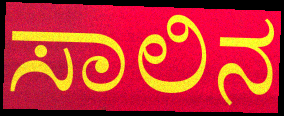
ಸಾಲಿನ